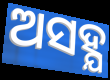
ଅସହ୍ଯ